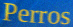
Perros